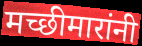
मच्छीमारांनी